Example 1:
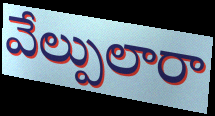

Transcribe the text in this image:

వేల్పులారా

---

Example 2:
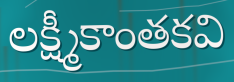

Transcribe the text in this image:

లక్ష్మీకాంతకవి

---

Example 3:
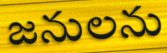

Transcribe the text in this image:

జనులను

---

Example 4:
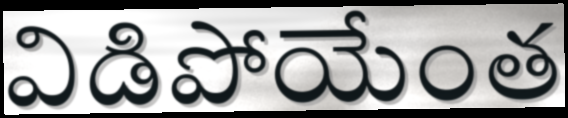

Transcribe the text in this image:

విడిపోయేంత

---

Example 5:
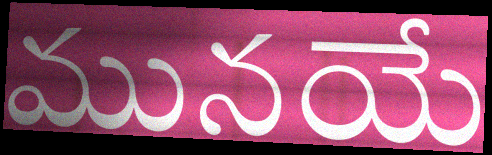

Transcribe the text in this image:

మునయే